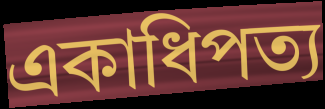
একাধিপত্য